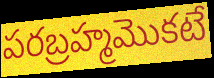
పరబ్రహ్మమొకటే